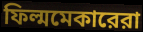
ফিল্মমেকারেরা